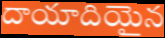
దాయాదియైన